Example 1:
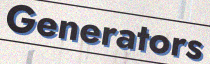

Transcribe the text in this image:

Generators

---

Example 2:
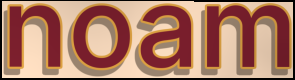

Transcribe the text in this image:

noam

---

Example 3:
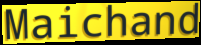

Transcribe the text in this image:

Maichand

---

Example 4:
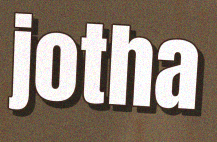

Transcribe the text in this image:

jotha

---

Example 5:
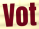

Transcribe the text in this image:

Vot